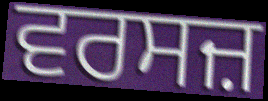
ਵਰਸਜ਼